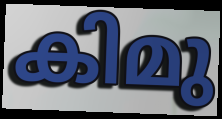
കിമു